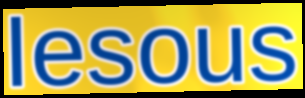
Iesous